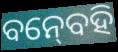
ବନ୍‍ବେହି